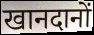
खानदानों